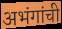
अभंगांची